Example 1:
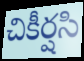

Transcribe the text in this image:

చికీర్షసి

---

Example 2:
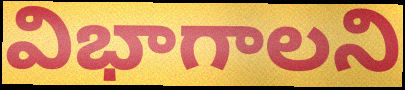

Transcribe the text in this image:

విభాగాలని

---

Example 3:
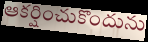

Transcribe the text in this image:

ఆకర్షించుకొందును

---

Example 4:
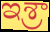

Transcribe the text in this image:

ఇశ్రా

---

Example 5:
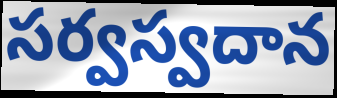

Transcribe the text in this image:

సర్వస్వదాన